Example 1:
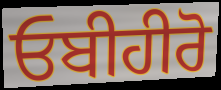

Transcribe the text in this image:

ਓਬੀਹੀਰੋ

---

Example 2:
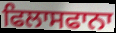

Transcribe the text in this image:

ਫਿਲਾਸਫਾਨਾ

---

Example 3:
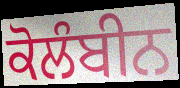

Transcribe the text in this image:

ਕੋਲੰਬੀਨ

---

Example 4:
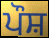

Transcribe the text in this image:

ਪੌਸ਼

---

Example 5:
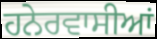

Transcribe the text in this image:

ਹਨੇਰਵਾਸੀਆਂ